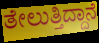
ತೇಲುತ್ತಿದ್ದಾನೆ